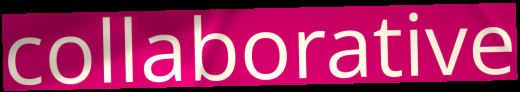
collaborative